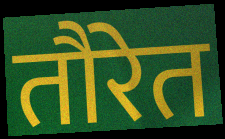
तौरेत